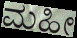
ಮಹೀ